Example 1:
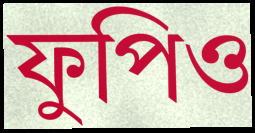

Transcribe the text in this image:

ফুপিও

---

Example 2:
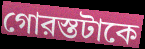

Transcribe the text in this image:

গোরস্তটাকে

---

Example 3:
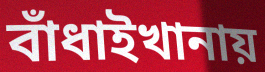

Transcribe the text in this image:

বাঁধাইখানায়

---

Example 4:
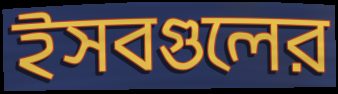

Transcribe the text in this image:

ইসবগুলের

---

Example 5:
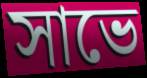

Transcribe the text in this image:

সাভে